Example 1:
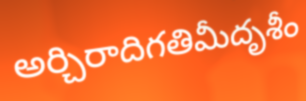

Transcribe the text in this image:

అర్చిరాదిగతిమీదృశీం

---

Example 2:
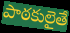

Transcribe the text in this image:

పాఠకులైతే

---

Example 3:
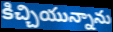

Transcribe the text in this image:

కిచ్చియున్నాను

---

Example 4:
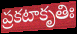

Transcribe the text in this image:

ప్రకటాకృతిః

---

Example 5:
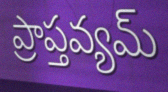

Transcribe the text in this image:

ప్రాప్తవ్యమ్